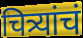
चित्र्यांचं